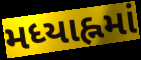
મધ્યાહ્નમાં